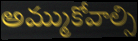
అమ్ముకోవాల్సి